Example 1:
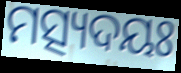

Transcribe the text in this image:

ମତ୍ସ୍ୟଦୟଃ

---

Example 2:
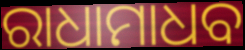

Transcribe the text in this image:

ରାଧାମାଧବ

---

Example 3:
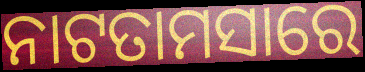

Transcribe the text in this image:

ନାଟତାମସାରେ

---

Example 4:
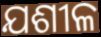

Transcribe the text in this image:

ଯଶୀଳ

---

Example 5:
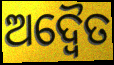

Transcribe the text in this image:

ଅଦ୍ୱୈତ